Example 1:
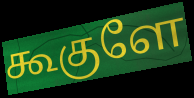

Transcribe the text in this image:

கூகுளே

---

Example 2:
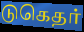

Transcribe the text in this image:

டுகெதர்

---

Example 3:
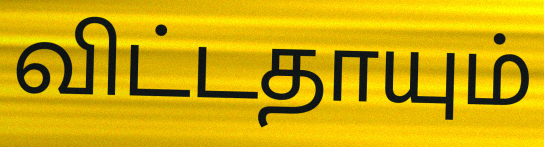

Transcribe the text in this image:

விட்டதாயும்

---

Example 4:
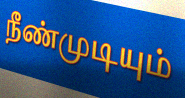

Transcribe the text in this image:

நீண்முடியும்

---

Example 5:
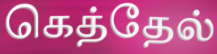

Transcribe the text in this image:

கெத்தேல்